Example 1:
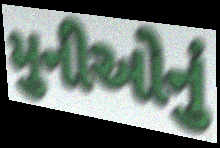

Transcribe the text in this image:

મુનીઓનું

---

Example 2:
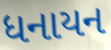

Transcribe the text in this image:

ધનાયન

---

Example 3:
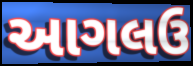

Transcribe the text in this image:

આગલઉ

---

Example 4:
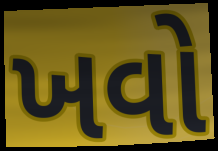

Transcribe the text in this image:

ખવો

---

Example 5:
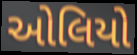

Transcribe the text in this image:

ઓલિયો